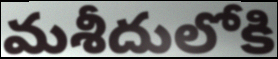
మశీదులోకి